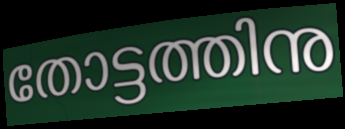
തോട്ടത്തിനു